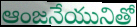
ఆంజనేయునితో